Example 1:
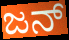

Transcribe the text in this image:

ಜನ್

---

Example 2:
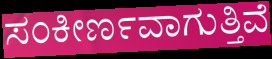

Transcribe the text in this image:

ಸಂಕೀರ್ಣವಾಗುತ್ತಿವೆ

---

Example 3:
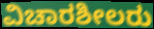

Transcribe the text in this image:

ವಿಚಾರಶೀಲರು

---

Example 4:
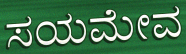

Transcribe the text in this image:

ಸಯಮೇವ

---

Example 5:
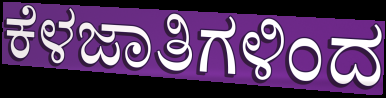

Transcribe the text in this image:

ಕೆಳಜಾತಿಗಳಿಂದ